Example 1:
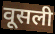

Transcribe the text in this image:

वूसली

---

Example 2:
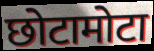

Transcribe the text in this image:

छोटामोटा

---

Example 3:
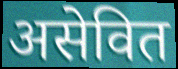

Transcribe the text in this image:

असेवित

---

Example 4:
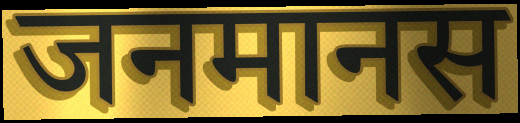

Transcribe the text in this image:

जनमानस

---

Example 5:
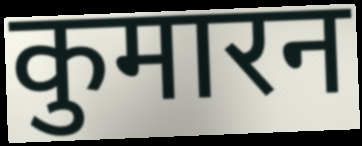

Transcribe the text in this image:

कुमारन